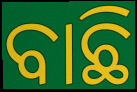
ବାଛି